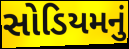
સોડિયમનું